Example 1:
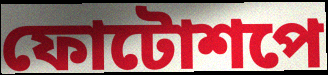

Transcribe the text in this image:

ফোটোশপে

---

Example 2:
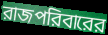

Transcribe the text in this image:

রাজপরিবারের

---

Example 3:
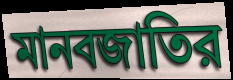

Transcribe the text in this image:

মানবজাতির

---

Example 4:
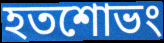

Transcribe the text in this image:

হতশোভং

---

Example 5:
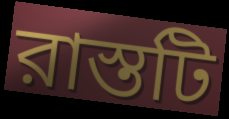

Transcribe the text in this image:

রাস্তটি